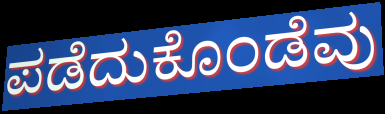
ಪಡೆದುಕೊಂಡೆವು